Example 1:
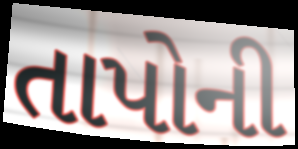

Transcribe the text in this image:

તાપોની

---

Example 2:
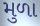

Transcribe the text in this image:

મુળા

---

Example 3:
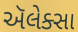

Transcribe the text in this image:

ઍલેક્સા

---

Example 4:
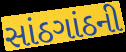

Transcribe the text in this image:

સાંઠગાંઠની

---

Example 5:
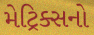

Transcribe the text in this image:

મેટ્રિક્સનો